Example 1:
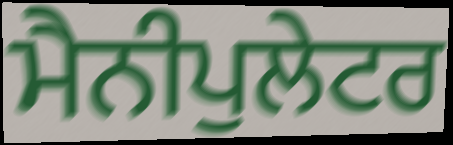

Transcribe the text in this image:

ਮੈਨੀਪੁਲੇਟਰ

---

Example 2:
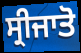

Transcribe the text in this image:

ਸ੍ਰੀਜਾਤੋ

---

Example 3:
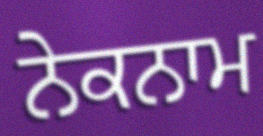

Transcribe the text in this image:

ਨੇਕਨਾਮ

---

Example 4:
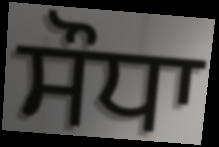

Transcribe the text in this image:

ਸੌਧਾ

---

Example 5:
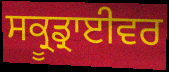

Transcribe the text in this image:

ਸਕ੍ਰੂਡ੍ਰਾਈਵਰ